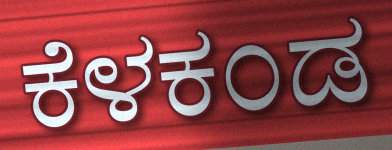
ಕೆಳಕಂಡ